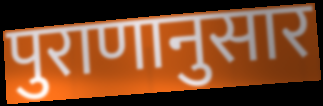
पुराणानुसार